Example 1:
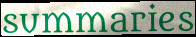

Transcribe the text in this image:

summaries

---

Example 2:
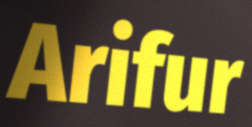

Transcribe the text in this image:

Arifur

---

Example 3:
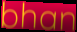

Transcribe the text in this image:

bhan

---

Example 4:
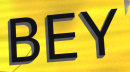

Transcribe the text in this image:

BEY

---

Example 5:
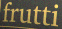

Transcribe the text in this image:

frutti